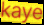
kaye